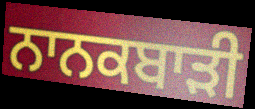
ਨਾਨਕਬਾੜੀ